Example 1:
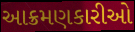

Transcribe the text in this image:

આક્રમણકારીઓ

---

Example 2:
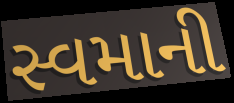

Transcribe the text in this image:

સ્વમાની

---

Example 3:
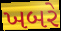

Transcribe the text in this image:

ખબરે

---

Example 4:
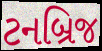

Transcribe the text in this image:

ટનબ્રિજ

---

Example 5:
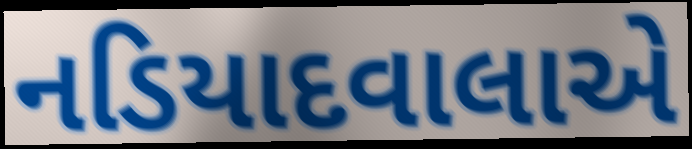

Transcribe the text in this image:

નડિયાદવાલાએ